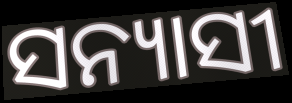
ସନ୍ଯାସୀ